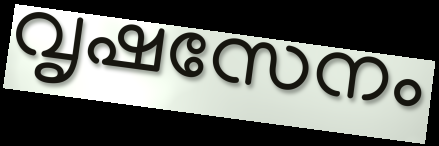
വൃഷസേനം